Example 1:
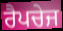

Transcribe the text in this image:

ਰੈਪਚੇਜ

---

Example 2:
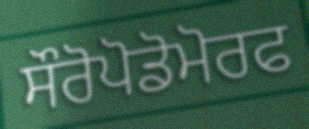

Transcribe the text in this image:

ਸੌਰੋਪੋਡੋਮੋਰਫ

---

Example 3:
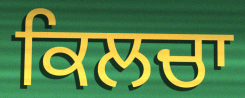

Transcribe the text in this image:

ਕਿਲਚਾ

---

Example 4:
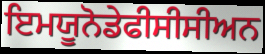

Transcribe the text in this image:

ਇਮਯੂਨੋਡੇਫੀਸੀਸੀਅਨ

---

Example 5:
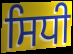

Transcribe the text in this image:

ਸਿਧੀ